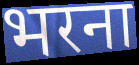
भरना